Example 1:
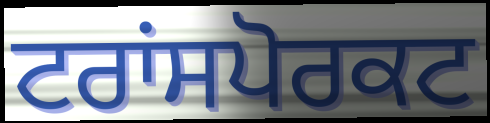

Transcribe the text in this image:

ਟਰਾਂਸਪੋਰਕਟ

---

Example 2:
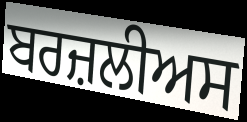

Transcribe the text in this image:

ਬਰਜ਼ਲੀਅਸ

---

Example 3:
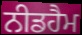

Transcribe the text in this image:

ਨੀਡਹੈਮ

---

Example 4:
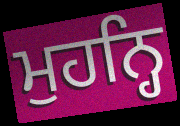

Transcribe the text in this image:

ਮੁਹਨ੍ਹ੍ਹਿ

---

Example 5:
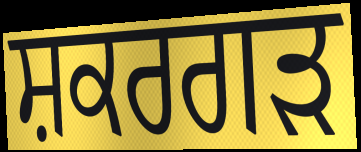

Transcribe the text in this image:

ਸ਼ਕਰਗੜ